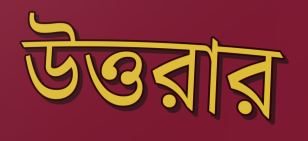
উত্তরার